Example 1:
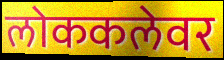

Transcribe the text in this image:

लोककलेवर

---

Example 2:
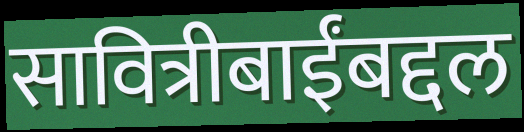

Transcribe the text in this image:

सावित्रीबाईंबद्दल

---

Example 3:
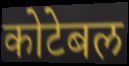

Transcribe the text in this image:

कोटेबल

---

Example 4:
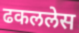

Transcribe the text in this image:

ढकललेस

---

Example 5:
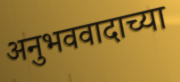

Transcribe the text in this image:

अनुभववादाच्या